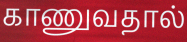
காணுவதால்